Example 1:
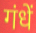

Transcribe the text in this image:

गंधें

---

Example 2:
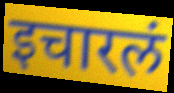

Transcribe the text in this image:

इचारलं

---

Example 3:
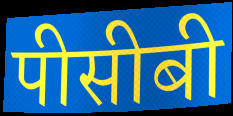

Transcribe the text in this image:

पीसीबी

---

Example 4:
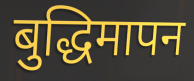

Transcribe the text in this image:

बुद्धिमापन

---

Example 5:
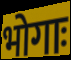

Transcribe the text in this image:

भोगाः